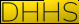
DHHS